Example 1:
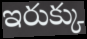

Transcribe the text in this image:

ఇరుక్కు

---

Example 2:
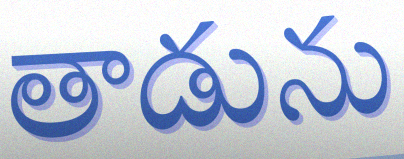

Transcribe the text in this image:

తాడును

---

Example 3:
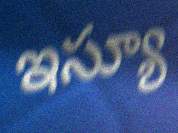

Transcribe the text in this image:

ఇస్యూ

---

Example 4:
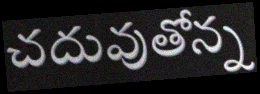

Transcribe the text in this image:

చదువుతోన్న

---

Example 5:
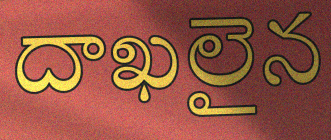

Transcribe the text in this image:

దాఖలైన